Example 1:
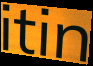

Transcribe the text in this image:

itin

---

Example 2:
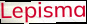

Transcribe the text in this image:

Lepisma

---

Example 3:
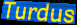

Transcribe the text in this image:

Turdus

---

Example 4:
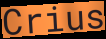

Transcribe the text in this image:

Crius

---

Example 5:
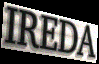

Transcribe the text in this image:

IREDA